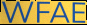
WFAE